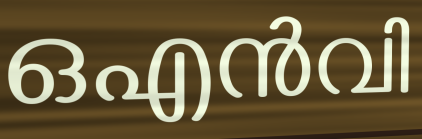
ഒഎൻവി